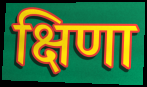
क्षिणा